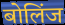
बोलिंज